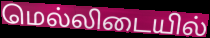
மெல்லிடையில்